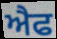
ਐਫ